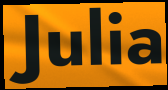
Julia